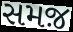
સમજ઼